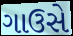
ગાઉસે